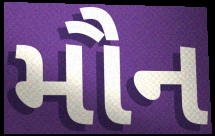
મૌન